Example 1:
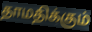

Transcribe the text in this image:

தாமதிக்கும்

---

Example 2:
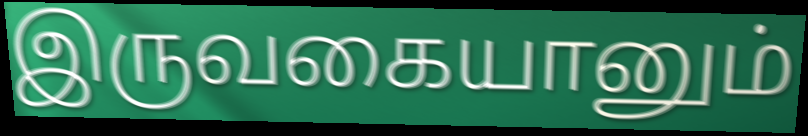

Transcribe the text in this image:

இருவகையானும்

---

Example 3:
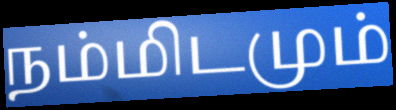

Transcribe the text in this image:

நம்மிடமும்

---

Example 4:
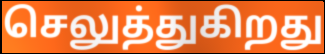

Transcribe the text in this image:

செலுத்துகிறது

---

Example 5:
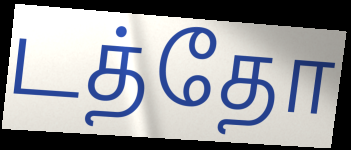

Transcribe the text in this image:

டத்தோ